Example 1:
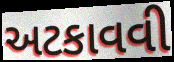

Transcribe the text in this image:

અટકાવવી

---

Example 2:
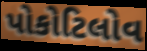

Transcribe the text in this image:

પોકોટિલોવ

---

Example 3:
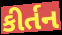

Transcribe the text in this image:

કીર્તન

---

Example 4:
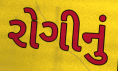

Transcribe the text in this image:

રોગીનું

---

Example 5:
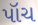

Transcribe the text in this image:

પૉચ